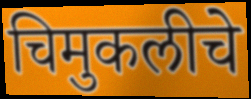
चिमुकलीचे